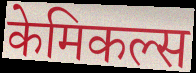
केमिकल्स